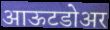
आऊटडोअर